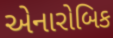
એનારોબિક